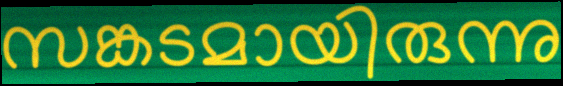
സങ്കടമായിരുന്നു